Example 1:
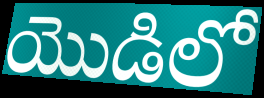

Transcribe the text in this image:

యొడిలో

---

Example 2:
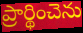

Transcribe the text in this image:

ప్రార్థించెను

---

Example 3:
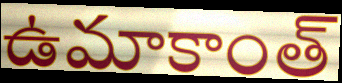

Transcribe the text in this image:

ఉమాకాంత్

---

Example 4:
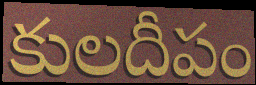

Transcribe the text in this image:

కులదీపం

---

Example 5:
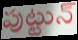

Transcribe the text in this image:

పుట్టున్